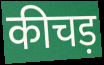
कीचड़